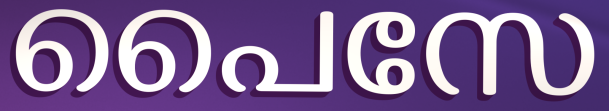
പൈസേ